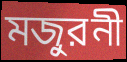
মজুরনী